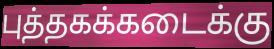
புத்தகக்கடைக்கு